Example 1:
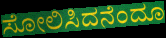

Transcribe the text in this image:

ಸೋಲಿಸಿದನೆಂದೂ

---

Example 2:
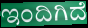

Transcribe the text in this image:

ಇಂದಿಗಿದೆ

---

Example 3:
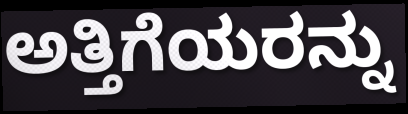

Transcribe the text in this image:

ಅತ್ತಿಗೆಯರನ್ನು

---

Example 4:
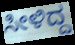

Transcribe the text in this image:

ಸೀಳಿದ್ದ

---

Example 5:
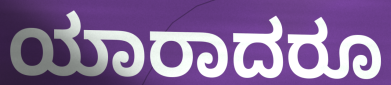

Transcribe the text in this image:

ಯಾರಾದರೂ